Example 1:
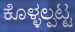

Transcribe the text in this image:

ಕೊಳ್ಳಲ್ಪಟ್ಟ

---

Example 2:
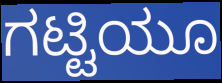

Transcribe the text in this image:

ಗಟ್ಟಿಯೂ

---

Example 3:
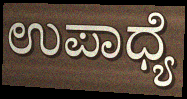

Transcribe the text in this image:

ಉಪಾಧ್ಯೆ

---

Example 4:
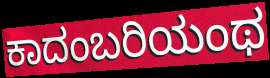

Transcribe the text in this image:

ಕಾದಂಬರಿಯಂಥ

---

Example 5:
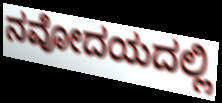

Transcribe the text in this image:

ನವೋದಯದಲ್ಲಿ